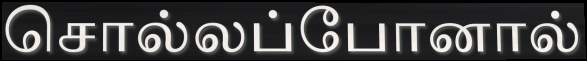
சொல்லப்போனால்